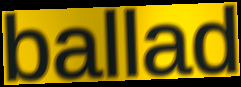
ballad